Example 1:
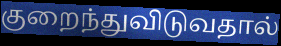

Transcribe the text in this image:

குறைந்துவிடுவதால்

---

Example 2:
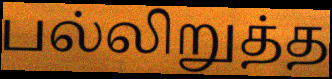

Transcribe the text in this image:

பல்லிறுத்த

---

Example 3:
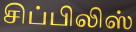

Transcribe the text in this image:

சிப்பிலிஸ்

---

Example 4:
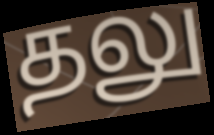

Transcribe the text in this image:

தலு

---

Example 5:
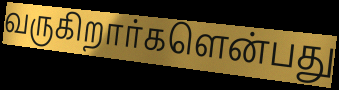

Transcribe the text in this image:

வருகிறார்களென்பது